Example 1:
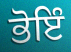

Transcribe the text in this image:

ਭੋਇੰ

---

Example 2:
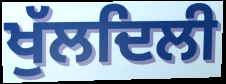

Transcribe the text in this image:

ਖੁੱਲਦਿਲੀ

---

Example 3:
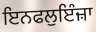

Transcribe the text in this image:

ਇਨਫਲੁਇੰਜ਼ਾ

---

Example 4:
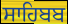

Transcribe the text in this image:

ਸਾਹਿਬਬ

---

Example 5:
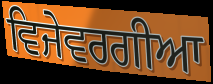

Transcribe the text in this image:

ਵਿਜੇਵਰਗੀਆ